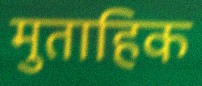
मुताहिक